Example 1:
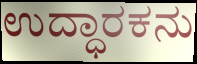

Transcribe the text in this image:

ಉದ್ಧಾರಕನು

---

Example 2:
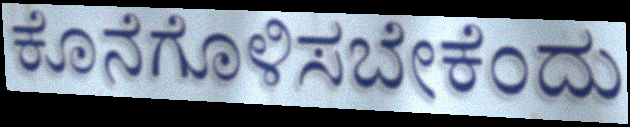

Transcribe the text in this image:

ಕೊನೆಗೊಳಿಸಬೇಕೆಂದು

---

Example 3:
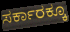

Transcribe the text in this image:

ಸರ್ಕಾರಕ್ಕೂ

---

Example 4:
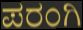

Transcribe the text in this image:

ಪರಂಗಿ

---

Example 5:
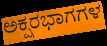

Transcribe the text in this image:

ಅಕ್ಷರಭಾಗಗಳ